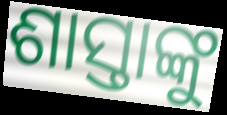
ଶାସ୍ତାଙ୍କୁ